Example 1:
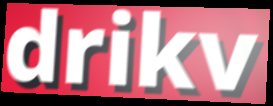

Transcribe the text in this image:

drikv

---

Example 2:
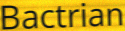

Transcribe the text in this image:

Bactrian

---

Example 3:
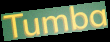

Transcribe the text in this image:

Tumba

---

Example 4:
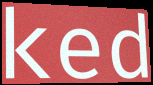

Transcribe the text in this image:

ked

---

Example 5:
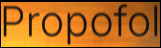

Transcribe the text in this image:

Propofol